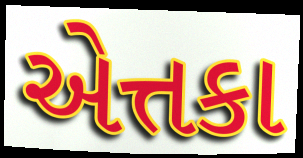
એત્તકા